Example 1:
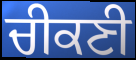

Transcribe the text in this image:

ਚੀਕਣੀ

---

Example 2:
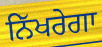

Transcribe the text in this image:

ਨਿੱਖਰੇਗਾ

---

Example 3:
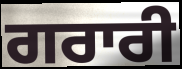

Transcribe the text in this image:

ਗਰਾਰੀ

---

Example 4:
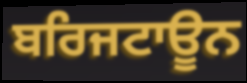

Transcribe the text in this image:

ਬਰਿਜਟਾਊਨ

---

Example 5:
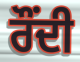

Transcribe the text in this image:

ਰੌਂਦੀ